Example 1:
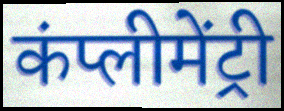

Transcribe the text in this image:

कंप्लीमेंट्री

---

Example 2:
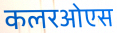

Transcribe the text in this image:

कलरओएस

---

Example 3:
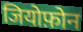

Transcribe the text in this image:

जियोफ़ोन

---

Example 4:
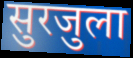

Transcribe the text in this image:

सुरजुला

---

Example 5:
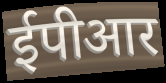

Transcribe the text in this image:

ईपीआर